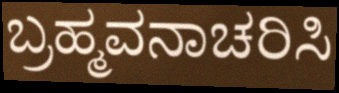
ಬ್ರಹ್ಮವನಾಚರಿಸಿ